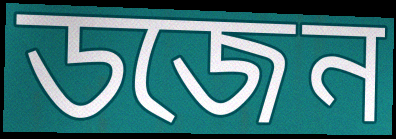
ডজেন